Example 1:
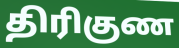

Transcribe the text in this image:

திரிகுண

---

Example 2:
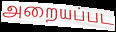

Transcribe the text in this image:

அறையப்பட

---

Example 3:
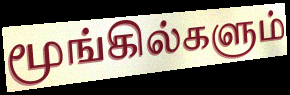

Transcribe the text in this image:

மூங்கில்களும்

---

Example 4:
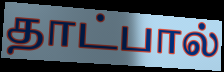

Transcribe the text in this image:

தாட்பால்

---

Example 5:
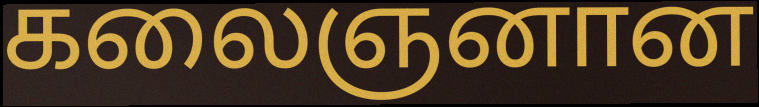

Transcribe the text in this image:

கலைஞனான